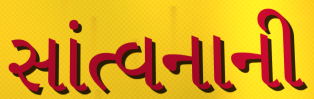
સાંત્વનાની